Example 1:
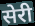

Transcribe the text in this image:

सेरी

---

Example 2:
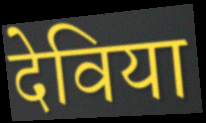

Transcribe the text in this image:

देविया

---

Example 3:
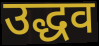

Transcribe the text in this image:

उद्धव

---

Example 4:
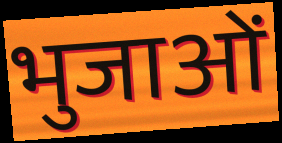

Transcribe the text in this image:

भुजाओं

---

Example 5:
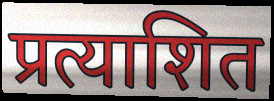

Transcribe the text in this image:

प्रत्याशित